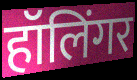
हॉलिंगर